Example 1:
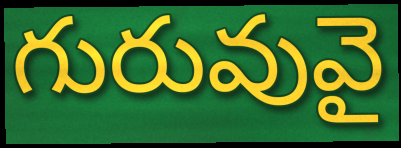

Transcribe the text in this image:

గురువువై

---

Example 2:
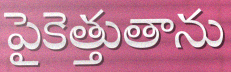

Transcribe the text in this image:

పైకెత్తుతాను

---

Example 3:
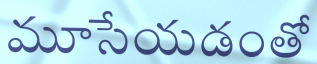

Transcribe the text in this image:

మూసేయడంతో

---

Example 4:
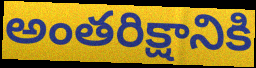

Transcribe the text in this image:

అంతరిక్షానికి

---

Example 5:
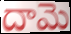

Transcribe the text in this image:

దామె